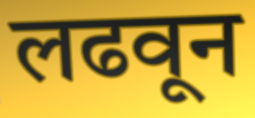
लढवून